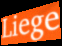
Liege